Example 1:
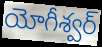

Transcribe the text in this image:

యోగీశ్వర్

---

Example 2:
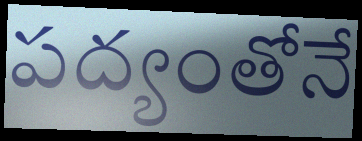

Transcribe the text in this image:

పద్యంతోనే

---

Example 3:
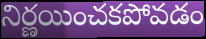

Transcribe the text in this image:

నిర్ణయించకపోవడం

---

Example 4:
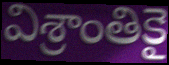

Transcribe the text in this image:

విశ్రాంతికై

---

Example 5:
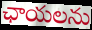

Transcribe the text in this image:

ఛాయలను